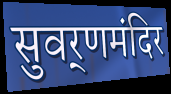
सुवर्णमंदिर